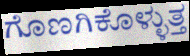
ಗೊಣಗಿಕೊಳ್ಳುತ್ತ